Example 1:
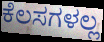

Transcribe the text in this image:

ಕೆಲಸಗಳಲ್ಲ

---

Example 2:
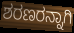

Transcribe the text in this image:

ಶರಣರನ್ನಾಗಿ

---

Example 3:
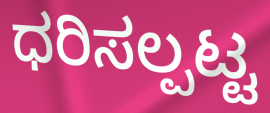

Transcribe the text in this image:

ಧರಿಸಲ್ಪಟ್ಟ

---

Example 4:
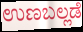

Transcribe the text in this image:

ಉಣಬಲ್ಲಡೆ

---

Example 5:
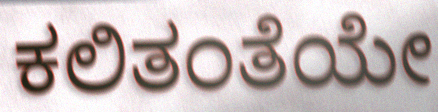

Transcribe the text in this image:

ಕಲಿತಂತೆಯೇ